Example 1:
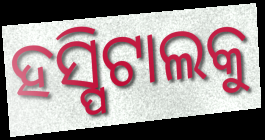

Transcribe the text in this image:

ହସ୍ପିଟାଲକୁ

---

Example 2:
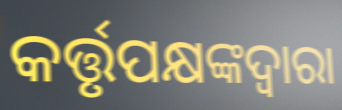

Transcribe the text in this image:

କର୍ତ୍ତୃପକ୍ଷଙ୍କଦ୍ଵାରା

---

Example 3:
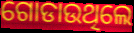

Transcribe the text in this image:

ଗୋଡାଉଥିଲେ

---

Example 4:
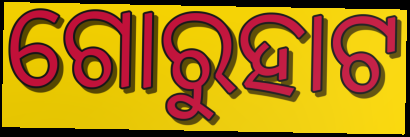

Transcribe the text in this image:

ଗୋରୁହାଟ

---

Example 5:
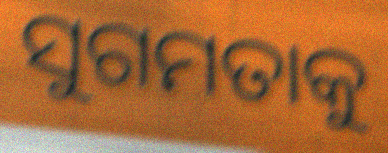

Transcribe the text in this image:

ସୁଗମତାକୁ